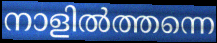
നാളിൽത്തന്നെ